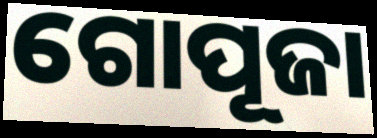
ଗୋପୂଜା